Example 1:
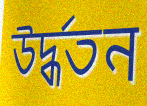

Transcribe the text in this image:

উর্দ্ধতন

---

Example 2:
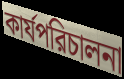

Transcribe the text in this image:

কার্যপরিচালনা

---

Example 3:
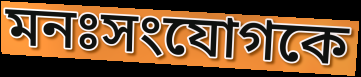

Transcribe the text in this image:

মনঃসংযোগকে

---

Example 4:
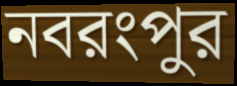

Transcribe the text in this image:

নবরংপুর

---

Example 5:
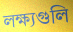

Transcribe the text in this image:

লক্ষ্যগুলি